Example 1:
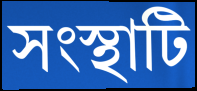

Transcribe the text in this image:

সংস্থাটি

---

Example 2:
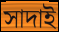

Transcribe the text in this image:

সাদাই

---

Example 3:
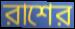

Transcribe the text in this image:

রাশের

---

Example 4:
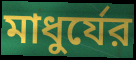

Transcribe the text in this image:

মাধুর্যের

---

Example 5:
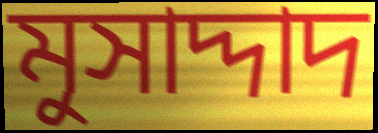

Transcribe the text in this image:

মুসাদ্দাদ